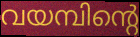
വയമ്പിന്റെ